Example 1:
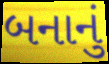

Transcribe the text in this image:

બનાનું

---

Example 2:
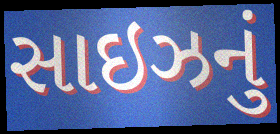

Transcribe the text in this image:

સાઇઝનું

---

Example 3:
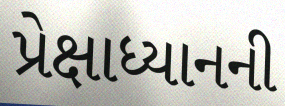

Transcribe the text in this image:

પ્રેક્ષાધ્યાનની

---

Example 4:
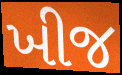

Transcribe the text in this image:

ખીજ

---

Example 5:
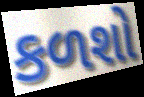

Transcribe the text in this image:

કળશો